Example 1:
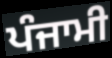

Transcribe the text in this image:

ਪੰਜਾਮੀ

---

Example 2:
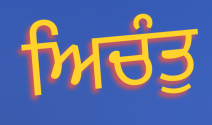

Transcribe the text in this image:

ਅਿਚੰਤੁ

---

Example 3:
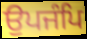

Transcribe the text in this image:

ਉਪਜੰਪਿ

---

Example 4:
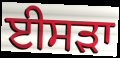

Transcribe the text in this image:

ਈਸੜਾ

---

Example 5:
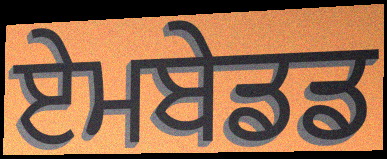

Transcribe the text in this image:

ਏਮਬੇਡਡ